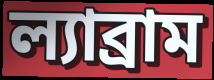
ল্যাব্রাম